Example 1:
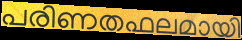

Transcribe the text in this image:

പരിണതഫലമായി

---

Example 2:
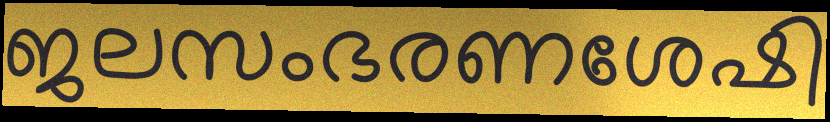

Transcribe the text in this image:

ജലസംഭരണശേഷി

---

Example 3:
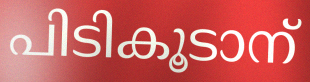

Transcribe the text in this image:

പിടികൂടാന്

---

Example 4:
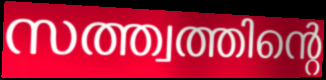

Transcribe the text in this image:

സത്ത്വത്തിന്റെ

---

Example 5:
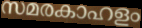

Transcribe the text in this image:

സമരകാഹളം